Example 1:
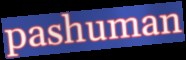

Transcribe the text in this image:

pashuman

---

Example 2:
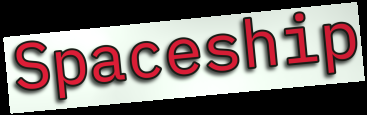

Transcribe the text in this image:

Spaceship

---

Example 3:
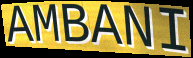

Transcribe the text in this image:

AMBANI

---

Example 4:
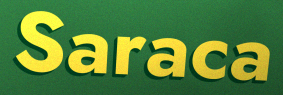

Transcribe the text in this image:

Saraca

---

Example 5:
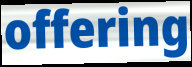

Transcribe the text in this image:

offering